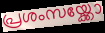
പ്രശംസയ്ക്കോ